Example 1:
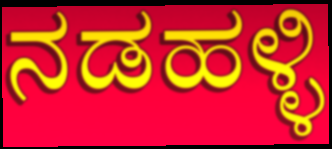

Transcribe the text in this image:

ನಡಹಳ್ಳಿ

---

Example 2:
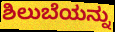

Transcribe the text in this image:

ಶಿಲುಬೆಯನ್ನು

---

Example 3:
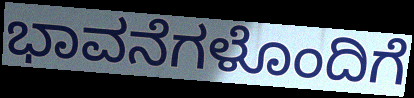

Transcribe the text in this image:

ಭಾವನೆಗಳೊಂದಿಗೆ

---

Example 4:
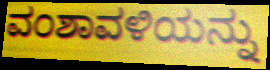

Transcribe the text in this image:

ವಂಶಾವಳಿಯನ್ನು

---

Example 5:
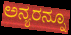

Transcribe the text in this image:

ಅನ್ಯರನ್ನೂ